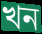
খন